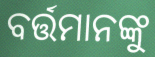
ବର୍ତ୍ତମାନଙ୍କୁ